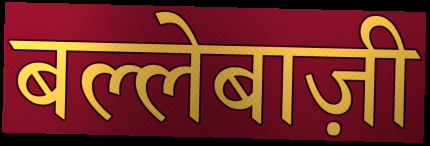
बल्लेबाज़ी